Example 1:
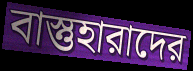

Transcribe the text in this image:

বাস্তুহারাদের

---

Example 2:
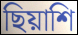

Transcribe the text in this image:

ছিয়াশি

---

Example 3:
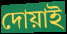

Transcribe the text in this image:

দোয়াই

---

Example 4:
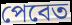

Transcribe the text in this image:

পেবেত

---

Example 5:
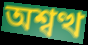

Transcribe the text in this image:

অশ্বত্থ